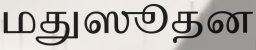
மதுஸூதன